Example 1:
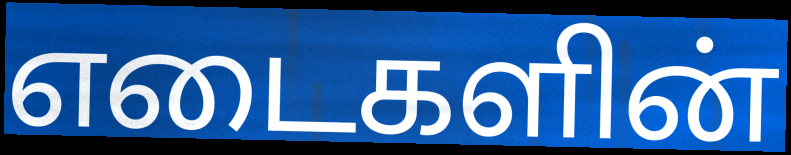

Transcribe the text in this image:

எடைகளின்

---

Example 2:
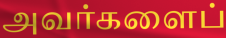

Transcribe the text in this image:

அவர்களைப்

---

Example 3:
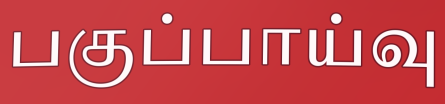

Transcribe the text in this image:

பகுப்பாய்வு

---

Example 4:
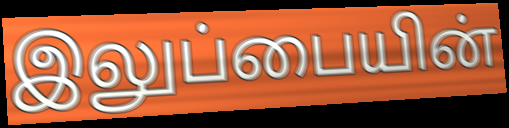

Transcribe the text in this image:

இலுப்பையின்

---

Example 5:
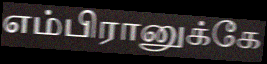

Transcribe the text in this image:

எம்பிரானுக்கே